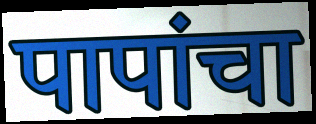
पापांचा